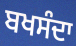
ਬਖਸੰਦਾ